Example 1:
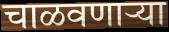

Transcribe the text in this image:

चाळवणाऱ्या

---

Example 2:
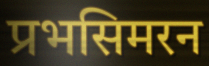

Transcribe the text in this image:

प्रभसिमरन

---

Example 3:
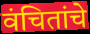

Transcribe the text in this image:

वंचितांचे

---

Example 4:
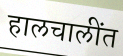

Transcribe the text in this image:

हालचालींत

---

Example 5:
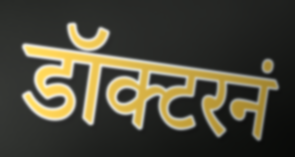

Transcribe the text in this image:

डॉक्टरनं